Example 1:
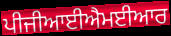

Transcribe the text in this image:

ਪੀਜੀਆਈਐਮਈਆਰ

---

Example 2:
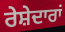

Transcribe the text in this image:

ਰੇਸ਼ੇਦਾਰਾਂ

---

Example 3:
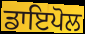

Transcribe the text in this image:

ਡਾਇਪੋਲ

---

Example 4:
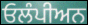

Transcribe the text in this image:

ਓਲੰਪੀਅਨ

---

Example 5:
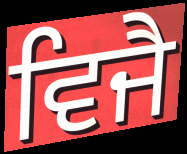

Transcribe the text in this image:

ਵਿਜੈ